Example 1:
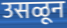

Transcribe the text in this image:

उसळून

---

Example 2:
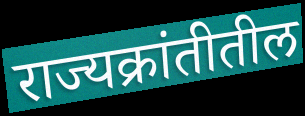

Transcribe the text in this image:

राज्यक्रांतीतील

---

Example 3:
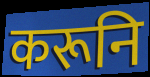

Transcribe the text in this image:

करूनि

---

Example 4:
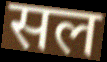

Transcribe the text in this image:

सल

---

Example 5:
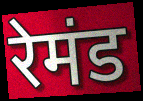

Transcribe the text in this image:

रेमंड